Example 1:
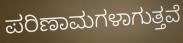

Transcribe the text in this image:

ಪರಿಣಾಮಗಳಾಗುತ್ತವೆ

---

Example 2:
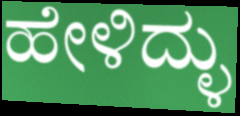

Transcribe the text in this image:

ಹೇಳಿದ್ಳು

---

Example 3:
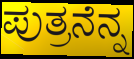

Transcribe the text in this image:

ಪುತ್ರನೆನ್ನ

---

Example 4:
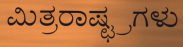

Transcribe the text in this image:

ಮಿತ್ರರಾಷ್ಟ್ರಗಳು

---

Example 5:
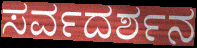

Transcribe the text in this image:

ಸರ್ವದರ್ಶನ